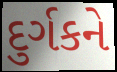
દુર્ગકને